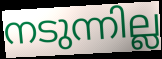
നടുന്നില്ല